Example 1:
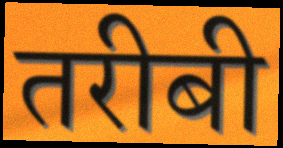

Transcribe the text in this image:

तरीबी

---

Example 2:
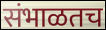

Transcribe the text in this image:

संभाळतच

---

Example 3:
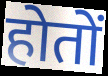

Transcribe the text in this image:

होतों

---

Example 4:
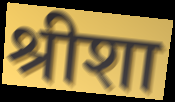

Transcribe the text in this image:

श्रीशा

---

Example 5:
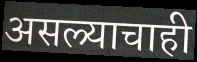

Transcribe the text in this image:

असल्याचाही